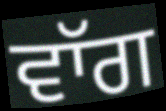
ਵਾੱਗ